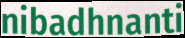
nibadhnanti